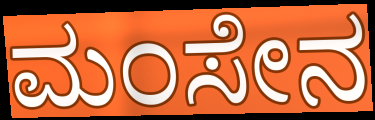
ಮಂಸೇನ